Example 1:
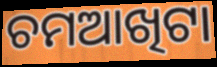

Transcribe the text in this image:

ଚମଆଖିଟା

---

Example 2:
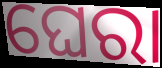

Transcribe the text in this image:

ଘେରା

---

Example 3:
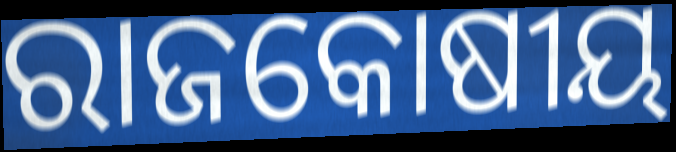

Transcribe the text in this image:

ରାଜକୋଷୀୟ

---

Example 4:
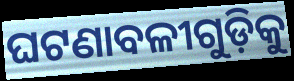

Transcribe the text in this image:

ଘଟଣାବଳୀଗୁଡ଼ିକୁ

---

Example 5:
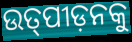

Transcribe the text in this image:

ଉତ୍‌ପୀଡ଼ନକୁ